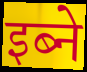
इब्ने